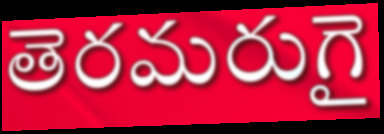
తెరమరుగై